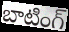
బాటింగ్